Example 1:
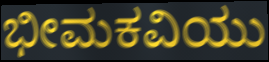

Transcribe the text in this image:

ಭೀಮಕವಿಯು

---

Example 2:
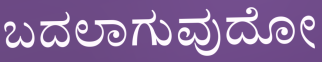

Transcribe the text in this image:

ಬದಲಾಗುವುದೋ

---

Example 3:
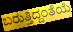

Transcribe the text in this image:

ಬರುತ್ತಿದ್ದಂತೆಯೆ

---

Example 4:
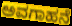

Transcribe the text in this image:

ಅವಗಾಹನೆ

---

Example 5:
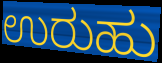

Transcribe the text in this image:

ಉರುಹು